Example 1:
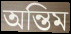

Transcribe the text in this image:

অন্তিম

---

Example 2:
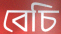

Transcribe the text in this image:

বেচি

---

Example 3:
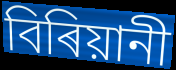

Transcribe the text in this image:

বিৰিয়ানী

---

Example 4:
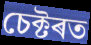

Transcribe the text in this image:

চেক্টৰত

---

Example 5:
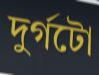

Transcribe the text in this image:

দুৰ্গটো